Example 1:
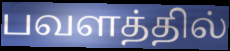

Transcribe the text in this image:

பவளத்தில்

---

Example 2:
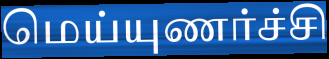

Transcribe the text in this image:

மெய்யுணர்ச்சி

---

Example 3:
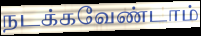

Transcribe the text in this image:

நடக்கவேண்டாம்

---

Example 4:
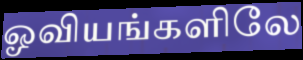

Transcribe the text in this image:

ஓவியங்களிலே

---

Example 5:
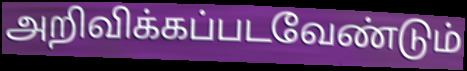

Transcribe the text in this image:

அறிவிக்கப்படவேண்டும்